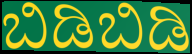
ಬಿಡಿಬಿಡಿ